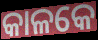
କାଳକେ